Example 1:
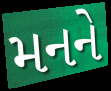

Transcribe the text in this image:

મનને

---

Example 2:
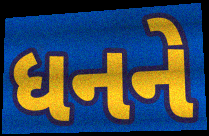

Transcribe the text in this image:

ધનને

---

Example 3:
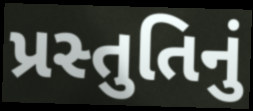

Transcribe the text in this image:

પ્રસ્તુતિનું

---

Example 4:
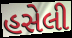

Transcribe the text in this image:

હસેલી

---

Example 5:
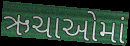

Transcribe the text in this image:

ઋચાઓમાં